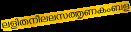
ലളിതനീലലസത്തൃണകംബള